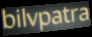
bilvpatra